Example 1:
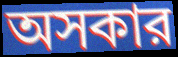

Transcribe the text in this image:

অসকার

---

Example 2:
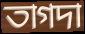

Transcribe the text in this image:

তাগদা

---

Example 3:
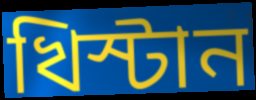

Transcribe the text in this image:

খিস্টান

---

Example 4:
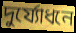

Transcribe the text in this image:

দুর্য্যোধনে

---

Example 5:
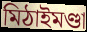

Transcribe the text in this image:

মিঠাইমণ্ডা